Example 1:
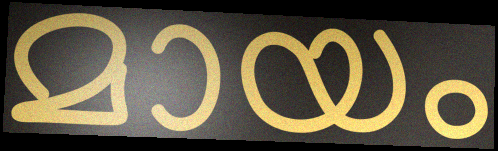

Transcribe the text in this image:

മായം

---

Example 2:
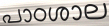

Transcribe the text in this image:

പാഠശാല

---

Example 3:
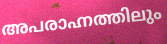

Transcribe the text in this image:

അപരാഹ്നത്തിലും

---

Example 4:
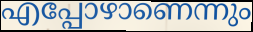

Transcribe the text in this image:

എപ്പോഴാണെന്നും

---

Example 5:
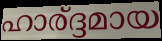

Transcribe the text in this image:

ഹാര്ദ്ദമായ